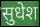
सुधेश